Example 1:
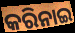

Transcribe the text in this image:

କରିନାଇ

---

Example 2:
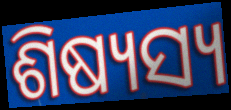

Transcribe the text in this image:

ଶିଷ୍ୟସ୍ୟ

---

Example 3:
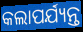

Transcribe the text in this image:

କଲାପର୍ଯ୍ୟନ୍ତ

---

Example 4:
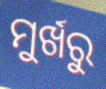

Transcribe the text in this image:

ମୁର୍ଖରୁ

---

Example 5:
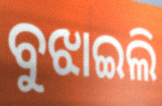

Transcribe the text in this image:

ବୁଝାଇଲି